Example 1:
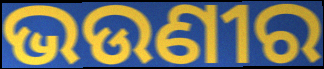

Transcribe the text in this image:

ଭଉଣୀର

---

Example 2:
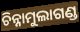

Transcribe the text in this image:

ଚିନ୍ନାମୁଲାଗଣ୍ଡ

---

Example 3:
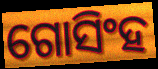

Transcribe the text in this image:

ଗୋସିଂହ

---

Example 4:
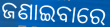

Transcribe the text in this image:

ଜଣାଇବାରେ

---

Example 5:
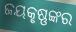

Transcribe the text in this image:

ଜୟକୃଷ୍ଣଙ୍କର